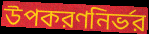
উপকরণনির্ভর